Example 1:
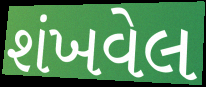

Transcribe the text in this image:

શંખવેલ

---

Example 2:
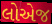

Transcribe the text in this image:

લોએજ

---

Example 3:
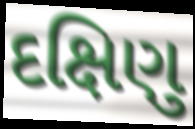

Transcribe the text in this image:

દક્ષિણુ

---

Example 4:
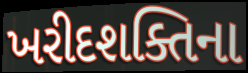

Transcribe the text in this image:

ખરીદશક્તિના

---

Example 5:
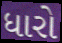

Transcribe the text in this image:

ધારો